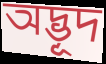
অদ্ভূদ